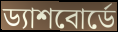
ড্যাশবোর্ডে